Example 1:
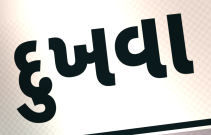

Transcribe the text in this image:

દુખવા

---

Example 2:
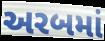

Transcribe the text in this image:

અરબમાં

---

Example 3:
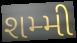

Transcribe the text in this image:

શમ્મી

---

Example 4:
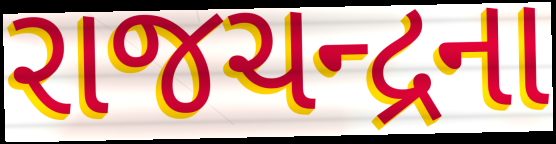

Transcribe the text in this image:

રાજચન્દ્રના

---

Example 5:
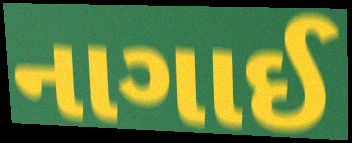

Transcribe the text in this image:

નાગાઈ